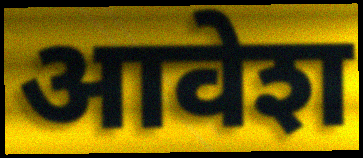
आवेश